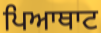
ਪਿਆਥਾਟ